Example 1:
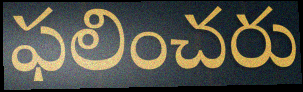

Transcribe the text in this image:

ఫలించరు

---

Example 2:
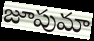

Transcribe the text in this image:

జూపుమా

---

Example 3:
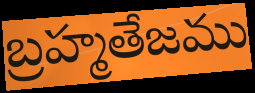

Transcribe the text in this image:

బ్రహ్మతేజము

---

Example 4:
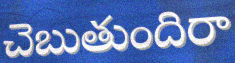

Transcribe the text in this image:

చెబుతుందిరా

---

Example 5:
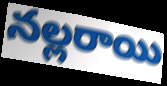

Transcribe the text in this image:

నల్లరాయి